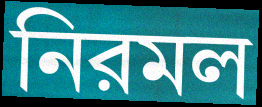
নিরমল